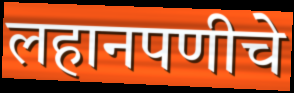
लहानपणीचे